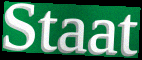
Staat